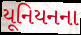
યૂનિયનના